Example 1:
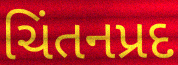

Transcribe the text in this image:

ચિંતનપ્રદ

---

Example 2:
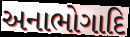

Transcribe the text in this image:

અનાભોગાદિ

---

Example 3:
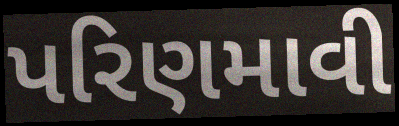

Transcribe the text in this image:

પરિણમાવી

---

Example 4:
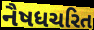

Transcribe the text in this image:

નૈષધચરિત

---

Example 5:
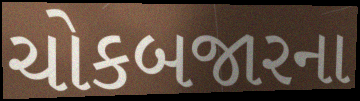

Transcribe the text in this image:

ચોકબજારના